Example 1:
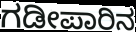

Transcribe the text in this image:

ಗಡೀಪಾರಿನ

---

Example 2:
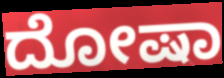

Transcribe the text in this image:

ದೋಷಾ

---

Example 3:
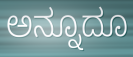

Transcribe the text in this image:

ಅನ್ನೂದೂ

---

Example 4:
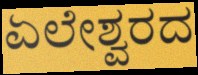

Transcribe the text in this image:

ಏಲೇಶ್ವರದ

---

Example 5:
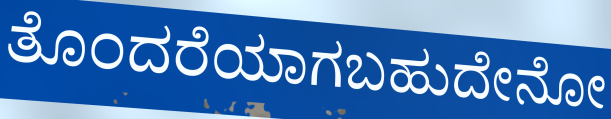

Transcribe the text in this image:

ತೊಂದರೆಯಾಗಬಹುದೇನೋ